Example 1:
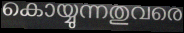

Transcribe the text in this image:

കൊയ്യുന്നതുവരെ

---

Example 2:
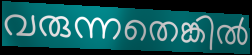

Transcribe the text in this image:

വരുന്നതെങ്കിൽ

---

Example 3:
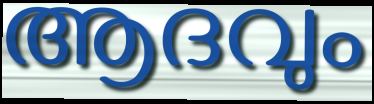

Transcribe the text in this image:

ആദവും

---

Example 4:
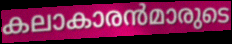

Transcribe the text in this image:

കലാകാരൻമാരുടെ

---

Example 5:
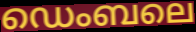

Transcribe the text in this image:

ഡെംബലെ